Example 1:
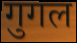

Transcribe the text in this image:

गुगल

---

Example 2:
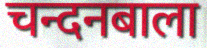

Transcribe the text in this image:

चन्दनबाला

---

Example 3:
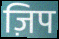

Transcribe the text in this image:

ज़िप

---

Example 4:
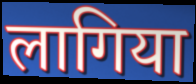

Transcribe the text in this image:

लागिया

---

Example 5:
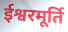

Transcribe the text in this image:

ईश्वरमूर्ति